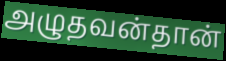
அழுதவன்தான்